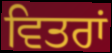
ਵਿਤਰਾਂ